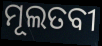
ମୂଲତବୀ